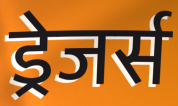
ड्रेजर्स